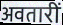
अवतारीं